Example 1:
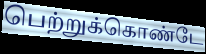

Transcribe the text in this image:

பெற்றுக்கொண்டே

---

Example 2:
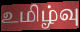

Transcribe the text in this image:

உமிழ்வு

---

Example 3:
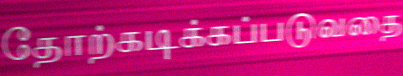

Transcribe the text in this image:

தோற்கடிக்கப்படுவதை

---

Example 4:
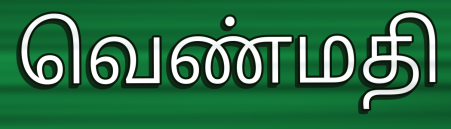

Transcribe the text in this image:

வெண்மதி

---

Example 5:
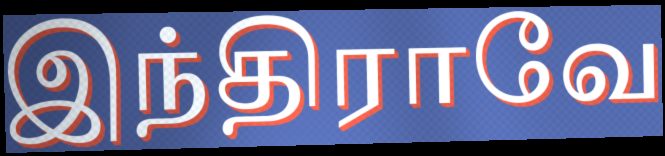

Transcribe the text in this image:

இந்திராவே